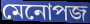
মেনোপজ